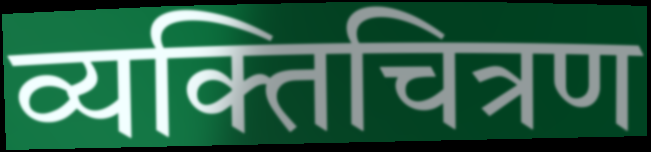
व्यक्तिचित्रण